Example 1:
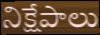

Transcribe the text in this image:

నిక్షేపాలు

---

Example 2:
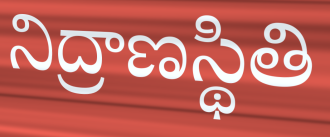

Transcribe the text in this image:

నిద్రాణస్థితి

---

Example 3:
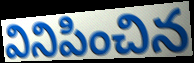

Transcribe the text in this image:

వినిపించిన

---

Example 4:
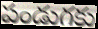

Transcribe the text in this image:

పండుగకు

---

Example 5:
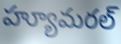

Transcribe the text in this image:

హ్యూమరల్